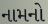
નામનો